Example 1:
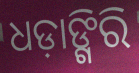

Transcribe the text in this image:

ଧଡ଼ାଙ୍ଗିରି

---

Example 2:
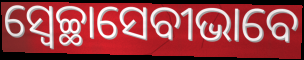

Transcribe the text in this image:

ସ୍ୱେଚ୍ଛାସେବୀଭାବେ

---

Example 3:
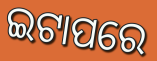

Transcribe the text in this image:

ଇଟାପରେ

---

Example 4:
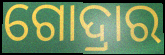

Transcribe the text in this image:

ଗୋଦ୍ରାର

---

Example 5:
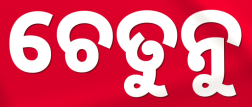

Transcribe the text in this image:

ଚେତୁନୁ